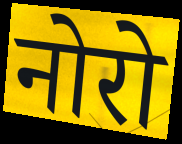
नोरो